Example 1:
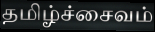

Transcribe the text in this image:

தமிழ்ச்சைவம்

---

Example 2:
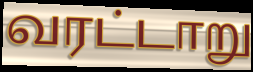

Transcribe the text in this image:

வரட்டாறு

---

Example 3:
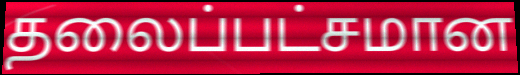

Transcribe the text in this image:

தலைப்பட்சமான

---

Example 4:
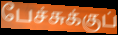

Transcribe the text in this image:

பேச்சுக்குப்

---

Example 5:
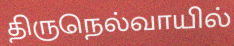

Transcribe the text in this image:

திருநெல்வாயில்